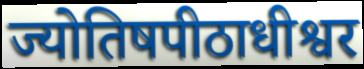
ज्योतिषपीठाधीश्वर